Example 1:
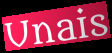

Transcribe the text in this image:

Unais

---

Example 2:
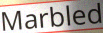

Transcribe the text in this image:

Marbled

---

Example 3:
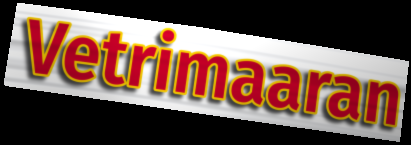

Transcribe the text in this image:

Vetrimaaran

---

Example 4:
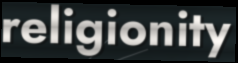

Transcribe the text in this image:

religionity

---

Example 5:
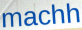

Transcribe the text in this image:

machh